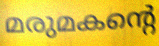
മരുമകന്റെ